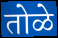
तोळे